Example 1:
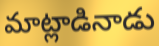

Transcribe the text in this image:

మాట్లాడినాడు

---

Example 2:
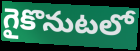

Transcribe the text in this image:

గైకొనుటలో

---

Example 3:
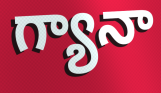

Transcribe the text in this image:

గ్యానా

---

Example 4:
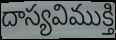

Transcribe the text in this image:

దాస్యవిముక్తి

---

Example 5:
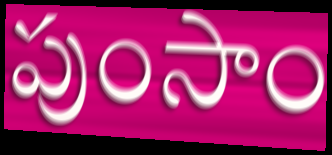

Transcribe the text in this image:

పుంసాం